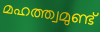
മഹത്ത്വമുണ്ട്